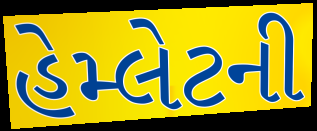
હેમ્લેટની